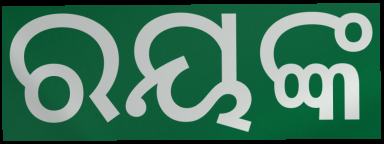
ରୟଙ୍କ